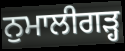
ਨੁਮਾਲੀਗੜ੍ਹ